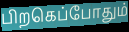
பிறகெப்போதும்